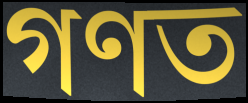
গণত